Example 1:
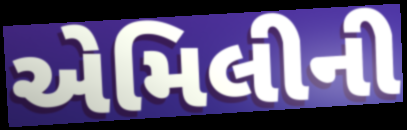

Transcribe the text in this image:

એમિલીની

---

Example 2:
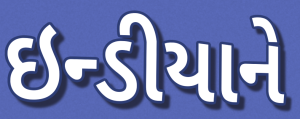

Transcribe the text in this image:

ઇન્ડીયાને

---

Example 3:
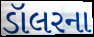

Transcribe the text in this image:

ડૉલરના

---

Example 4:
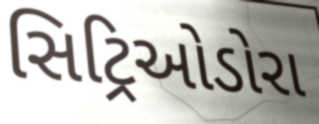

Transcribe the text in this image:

સિટ્રિઓડોરા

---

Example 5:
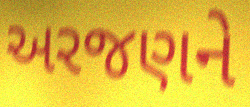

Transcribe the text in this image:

અરજણને